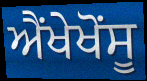
ਐਂਖੇਖੋਂਸੂ